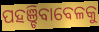
ପହଞ୍ଚିବାବେଳକୁ